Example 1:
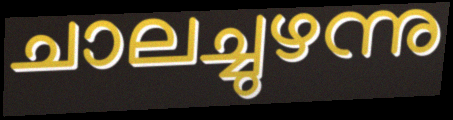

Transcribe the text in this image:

ചാലച്ചുഴന്നു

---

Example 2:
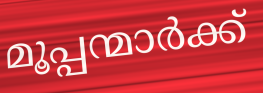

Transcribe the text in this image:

മൂപ്പന്മാർക്ക്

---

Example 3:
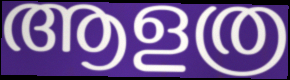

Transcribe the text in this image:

ആളത്ര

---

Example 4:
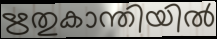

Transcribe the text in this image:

ഋതുകാന്തിയിൽ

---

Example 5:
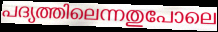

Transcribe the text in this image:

പദ്യത്തിലെന്നതുപോലെ